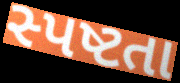
સ્પષ્ટતા